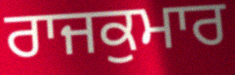
ਰਾਜਕੁਮਾਰ